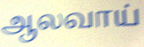
ஆலவாய்